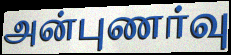
அன்புணர்வு